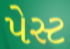
પેસ્ટ